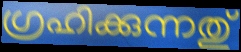
ഗ്രഹിക്കുന്നതു്